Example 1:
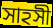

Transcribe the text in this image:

সাহসী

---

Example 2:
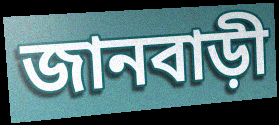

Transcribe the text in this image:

জানবাড়ী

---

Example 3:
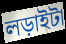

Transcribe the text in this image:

লড়াইটা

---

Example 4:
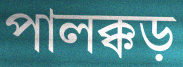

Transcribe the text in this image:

পালক্কড়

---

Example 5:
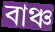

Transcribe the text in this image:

বাঞ্চ